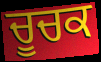
ਚੂਚਕ